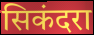
सिकंदरा